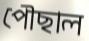
পৌছাল